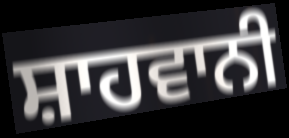
ਸ਼ਾਹਵਾਨੀ